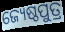
ଜ୍ୟେଷ୍ଠପୁତ୍ର